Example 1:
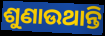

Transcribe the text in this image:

ଶୁଣାଉଥାନ୍ତି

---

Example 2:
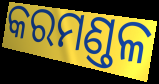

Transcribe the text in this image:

କରମଣ୍ଡଳ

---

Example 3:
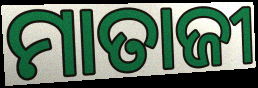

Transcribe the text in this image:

ମାତାଜୀ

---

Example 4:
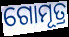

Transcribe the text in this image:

ଗୋମୂତ୍ର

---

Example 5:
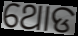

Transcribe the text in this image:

ଥୋଡ